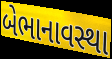
બેભાનાવસ્થા